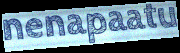
nenapaatu